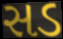
સડ